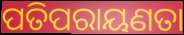
ପତିପରାୟଣତା